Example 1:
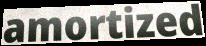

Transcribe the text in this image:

amortized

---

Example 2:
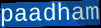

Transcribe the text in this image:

paadham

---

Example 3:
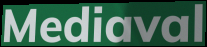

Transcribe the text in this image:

Mediaval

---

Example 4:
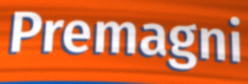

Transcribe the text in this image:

Premagni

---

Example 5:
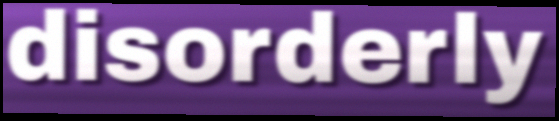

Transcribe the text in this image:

disorderly